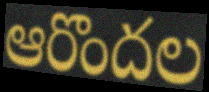
ఆరొందల